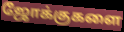
ஜோக்குகளை